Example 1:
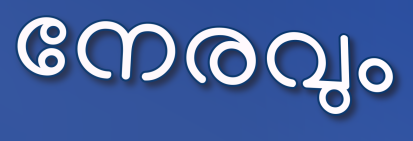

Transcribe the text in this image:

നേരവും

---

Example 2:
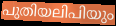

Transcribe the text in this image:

പുതിയലിപിയും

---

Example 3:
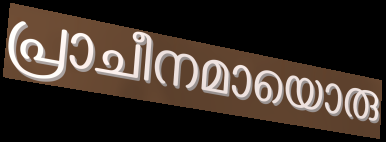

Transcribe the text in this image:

പ്രാചീനമായൊരു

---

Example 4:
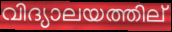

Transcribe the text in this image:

വിദ്യാലയത്തില്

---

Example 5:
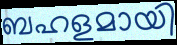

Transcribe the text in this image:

ബഹളമായി